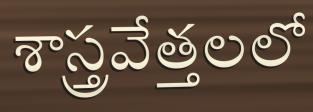
శాస్త్రవేత్తలలో